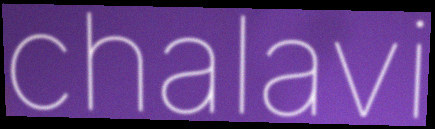
chalavi